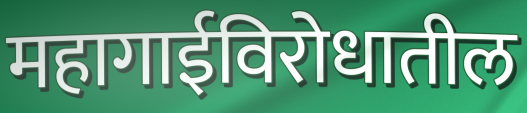
महागाईविरोधातील